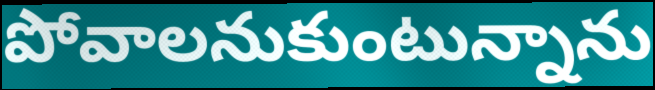
పోవాలనుకుంటున్నాను